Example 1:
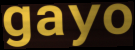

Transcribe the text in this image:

gayo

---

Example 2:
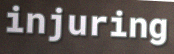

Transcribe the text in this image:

injuring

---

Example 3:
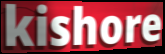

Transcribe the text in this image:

kishore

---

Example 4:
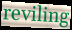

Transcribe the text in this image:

reviling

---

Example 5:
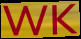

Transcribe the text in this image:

WK